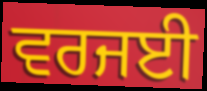
ਵਰਜਈ